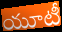
యూటీ